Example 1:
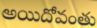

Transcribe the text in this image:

అయిదోవంతు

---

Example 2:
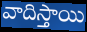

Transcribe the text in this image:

వాదిస్తాయి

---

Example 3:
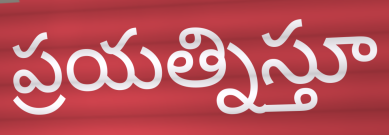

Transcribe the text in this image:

ప్రయత్నిస్తూ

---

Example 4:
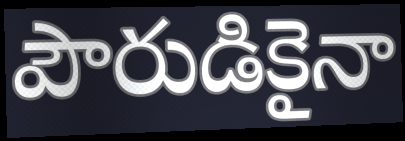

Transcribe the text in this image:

పౌరుడికైనా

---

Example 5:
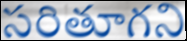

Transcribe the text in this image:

సరితూగని